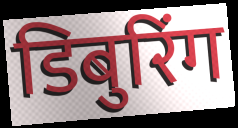
डिबुरिंग